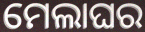
ମେଲାଘର